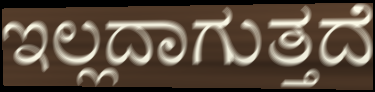
ಇಲ್ಲದಾಗುತ್ತದೆ